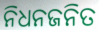
ନିଧନଜନିତ